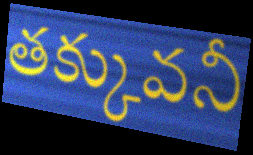
తక్కువనీ